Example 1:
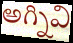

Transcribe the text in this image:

అగ్నివి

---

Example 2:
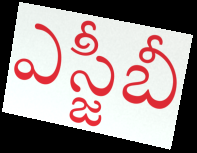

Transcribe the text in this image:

ఎస్జీబీ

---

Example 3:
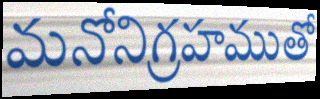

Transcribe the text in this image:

మనోనిగ్రహముతో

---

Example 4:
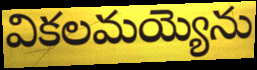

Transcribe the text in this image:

వికలమయ్యెను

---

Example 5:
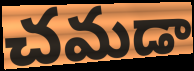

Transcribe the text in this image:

చమడా